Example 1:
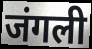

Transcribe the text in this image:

जंगली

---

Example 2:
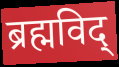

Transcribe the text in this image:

ब्रह्मविद्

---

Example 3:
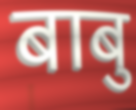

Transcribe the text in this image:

बाबु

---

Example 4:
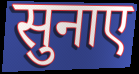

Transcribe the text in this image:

सुनाए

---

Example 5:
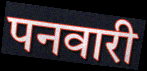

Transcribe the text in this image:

पनवारी